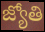
జ్యోతి